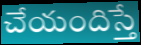
చేయందిస్తే